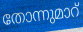
തോന്നുമാറ്